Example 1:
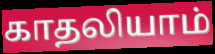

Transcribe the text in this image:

காதலியாம்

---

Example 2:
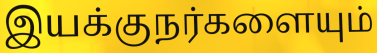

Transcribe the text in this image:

இயக்குநர்களையும்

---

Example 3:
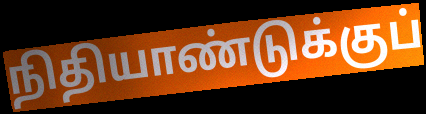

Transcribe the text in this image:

நிதியாண்டுக்குப்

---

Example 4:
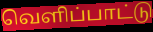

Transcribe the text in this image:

வெளிப்பாட்டு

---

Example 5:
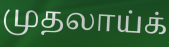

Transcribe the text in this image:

முதலாய்க்